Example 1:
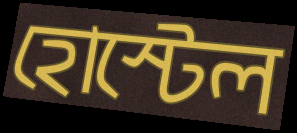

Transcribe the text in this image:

হোস্টেল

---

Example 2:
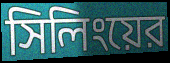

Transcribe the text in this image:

সিলিংয়ের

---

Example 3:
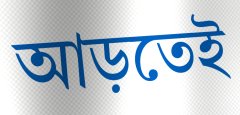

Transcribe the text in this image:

আড়তেই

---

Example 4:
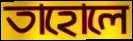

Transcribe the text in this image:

তাহোলে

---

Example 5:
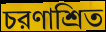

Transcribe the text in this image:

চরণাশ্রিত